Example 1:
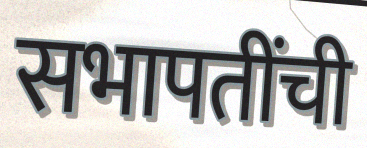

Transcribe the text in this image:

सभापतींची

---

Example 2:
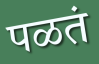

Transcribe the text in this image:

पळतं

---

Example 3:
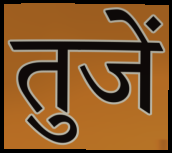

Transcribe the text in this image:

तुजें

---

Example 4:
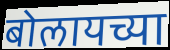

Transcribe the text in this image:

बोलायच्या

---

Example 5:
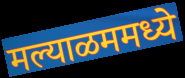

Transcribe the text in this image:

मल्याळममध्ये